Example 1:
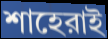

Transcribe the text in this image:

শাহেরাই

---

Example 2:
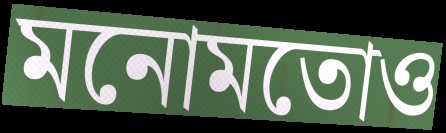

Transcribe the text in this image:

মনোমতোও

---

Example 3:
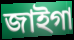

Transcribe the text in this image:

জাইগা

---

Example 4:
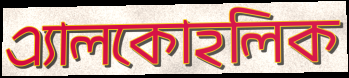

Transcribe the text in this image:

এ্যালকোহলিক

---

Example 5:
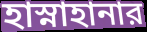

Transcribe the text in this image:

হাস্নাহানার